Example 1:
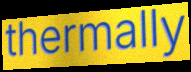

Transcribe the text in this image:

thermally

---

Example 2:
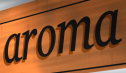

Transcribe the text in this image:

aroma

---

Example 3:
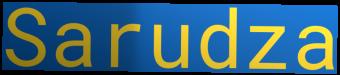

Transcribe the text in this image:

Sarudza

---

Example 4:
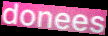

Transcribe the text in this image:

donees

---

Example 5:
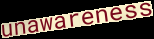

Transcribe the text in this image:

unawareness